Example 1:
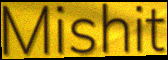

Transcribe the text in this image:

Mishit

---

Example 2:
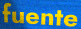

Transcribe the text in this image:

fuente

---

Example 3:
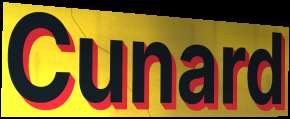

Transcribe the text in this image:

Cunard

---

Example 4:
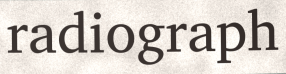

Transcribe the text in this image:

radiograph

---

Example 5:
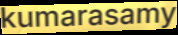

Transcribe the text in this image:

kumarasamy